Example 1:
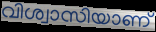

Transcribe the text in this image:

വിശ്വാസിയാണ്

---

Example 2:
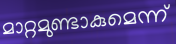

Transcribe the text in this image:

മാറ്റമുണ്ടാകുമെന്ന്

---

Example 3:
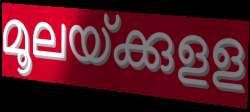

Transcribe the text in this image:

മൂലയ്‌ക്കുളള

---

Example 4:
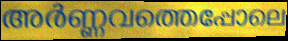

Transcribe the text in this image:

അർണ്ണവത്തെപ്പോലെ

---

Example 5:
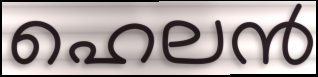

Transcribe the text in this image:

ഹെലൻ